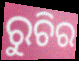
ରୁଚିର